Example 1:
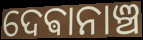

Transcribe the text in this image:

ଦେଵାନାଞ୍ଚ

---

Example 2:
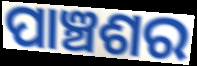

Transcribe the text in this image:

ପାଞ୍ଚଶର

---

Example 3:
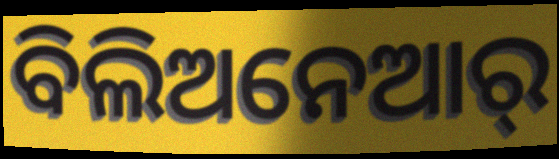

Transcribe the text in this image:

ବିଲିଅନେଆର୍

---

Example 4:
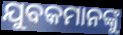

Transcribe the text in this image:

ଯୁବକମାନଙ୍କୁ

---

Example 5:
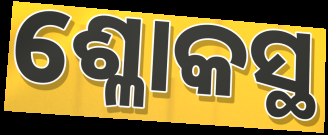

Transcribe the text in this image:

ଶ୍ଳୋକସ୍ଥ